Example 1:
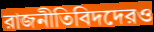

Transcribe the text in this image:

রাজনীতিবিদদেরও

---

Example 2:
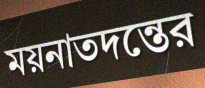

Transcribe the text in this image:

ময়নাতদন্তের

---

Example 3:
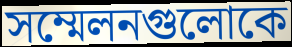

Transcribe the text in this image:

সম্মেলনগুলোকে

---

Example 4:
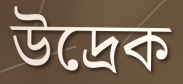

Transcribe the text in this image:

উদ্রেক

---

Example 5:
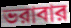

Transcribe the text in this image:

ভরাবার